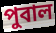
পুবাল